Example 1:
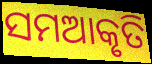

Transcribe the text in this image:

ସମଆକୃତି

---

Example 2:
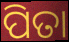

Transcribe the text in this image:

ପିତା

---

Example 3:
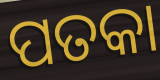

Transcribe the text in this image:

ପତକା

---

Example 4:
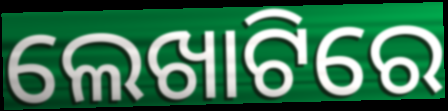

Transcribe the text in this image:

ଲେଖାଟିରେ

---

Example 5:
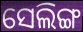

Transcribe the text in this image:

ସେଲିଙ୍ଗ